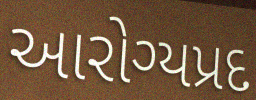
આરોગ્યપ્રદ